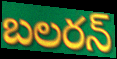
బలరన్